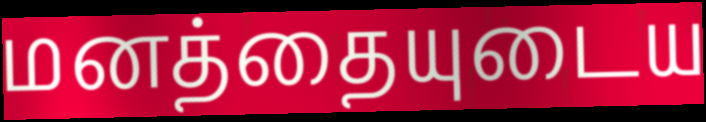
மனத்தையுடைய